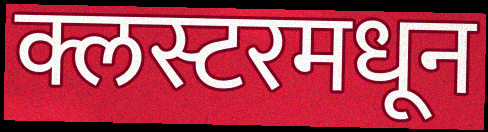
क्लस्टरमधून